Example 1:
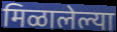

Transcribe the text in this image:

मिळालेल्या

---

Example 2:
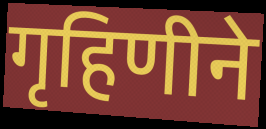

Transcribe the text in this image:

गृहिणीने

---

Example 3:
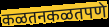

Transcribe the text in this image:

कळतनकळतपणे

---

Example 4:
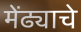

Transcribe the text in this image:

मेंढ्याचे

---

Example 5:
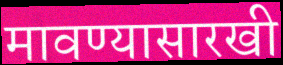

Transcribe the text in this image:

मावण्यासारखी